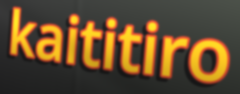
kaititiro